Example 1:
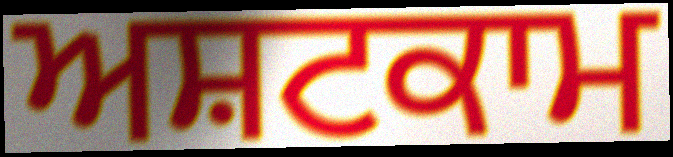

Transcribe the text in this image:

ਅਸ਼ਟਕਾਮ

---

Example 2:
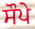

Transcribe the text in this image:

ਸੌਪੇ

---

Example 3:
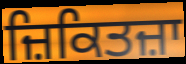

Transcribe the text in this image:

ਜ਼ਿਕਿਤਜ਼ਾ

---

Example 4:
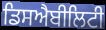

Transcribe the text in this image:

ਡਿਸਐਬੀਲਿਟੀ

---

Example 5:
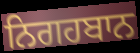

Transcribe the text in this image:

ਨਿਗਹਬਾਨ